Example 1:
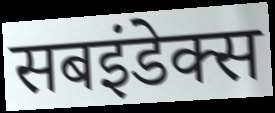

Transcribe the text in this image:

सबइंडेक्स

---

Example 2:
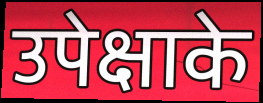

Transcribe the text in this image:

उपेक्षाके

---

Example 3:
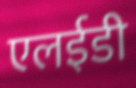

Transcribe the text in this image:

एलईडी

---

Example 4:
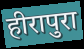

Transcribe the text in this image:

हीरापुरा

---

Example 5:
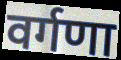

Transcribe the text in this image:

वर्गणा